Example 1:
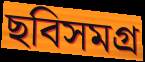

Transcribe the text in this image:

ছবিসমগ্র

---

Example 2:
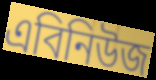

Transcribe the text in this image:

এবিনিউজ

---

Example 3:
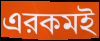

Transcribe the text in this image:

এরকমই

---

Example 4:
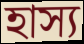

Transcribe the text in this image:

হাস্য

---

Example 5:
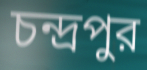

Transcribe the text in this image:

চন্দ্রপুর